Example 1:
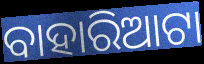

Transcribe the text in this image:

ବାହାରିଆଟା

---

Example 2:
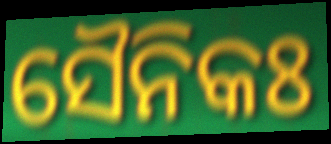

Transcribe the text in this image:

ସୈନିକଃ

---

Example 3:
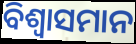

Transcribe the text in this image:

ବିଶ୍ଵାସମାନ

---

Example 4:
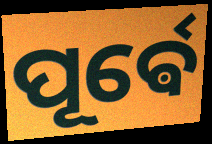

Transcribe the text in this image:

ପୂର୍ଵେ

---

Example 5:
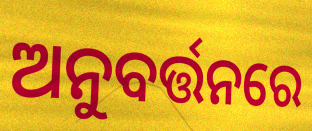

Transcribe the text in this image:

ଅନୁବର୍ତ୍ତନରେ